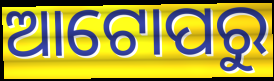
ଆଟୋପରୁ